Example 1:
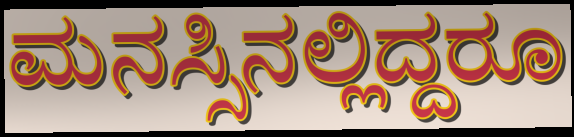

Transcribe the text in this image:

ಮನಸ್ಸಿನಲ್ಲಿದ್ದರೂ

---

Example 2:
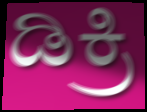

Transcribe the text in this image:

ಡಿಕ್ರಿ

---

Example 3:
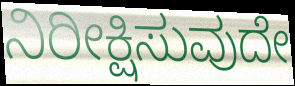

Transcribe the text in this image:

ನಿರೀಕ್ಷಿಸುವುದೇ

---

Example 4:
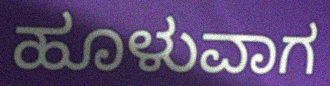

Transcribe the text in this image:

ಹೂಳುವಾಗ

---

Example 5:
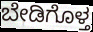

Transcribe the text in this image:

ಬೇಡಿಗೊಳ್ತ